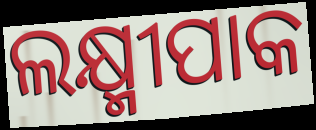
ଲକ୍ଷ୍ମୀପାକ